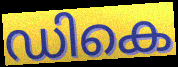
ഡികെ